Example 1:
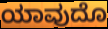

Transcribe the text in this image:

ಯಾವುದೊ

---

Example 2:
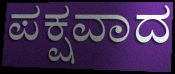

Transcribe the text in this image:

ಪಕ್ಷವಾದ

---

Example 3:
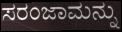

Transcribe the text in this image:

ಸರಂಜಾಮನ್ನು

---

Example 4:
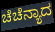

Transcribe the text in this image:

ಚೆಚೆನ್ಯಾದ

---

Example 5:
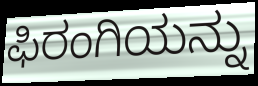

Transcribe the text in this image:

ಫಿರಂಗಿಯನ್ನು